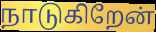
நாடுகிறேன்